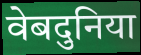
वेबदुनिया